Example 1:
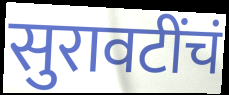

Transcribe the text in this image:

सुरावटींचं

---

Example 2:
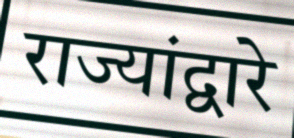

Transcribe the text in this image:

राज्यांद्वारे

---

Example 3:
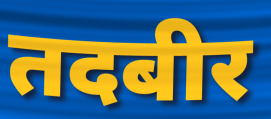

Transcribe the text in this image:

तदबीर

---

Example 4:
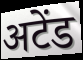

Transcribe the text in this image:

अटेंड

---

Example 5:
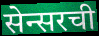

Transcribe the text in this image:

सेन्सरची